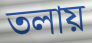
তলায়